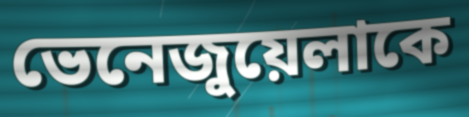
ভেনেজুয়েলাকে